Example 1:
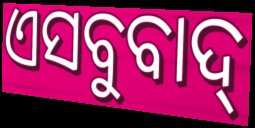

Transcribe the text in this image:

ଏସବୁବାଦ୍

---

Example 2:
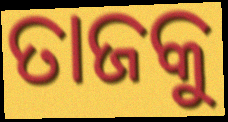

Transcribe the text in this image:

ତାଜକୁ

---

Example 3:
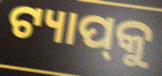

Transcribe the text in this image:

ଟ୍ୟାପ୍‌କୁ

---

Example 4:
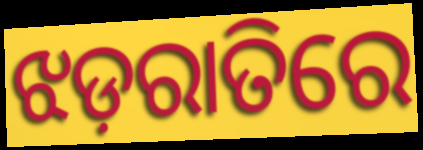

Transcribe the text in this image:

ଝଡ଼ରାତିରେ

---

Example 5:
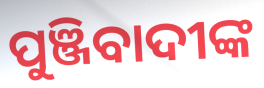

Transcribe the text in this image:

ପୁଞ୍ଜିବାଦୀଙ୍କ